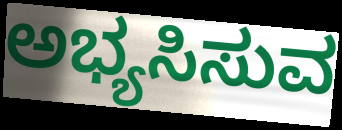
ಅಭ್ಯಸಿಸುವ